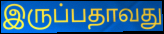
இருப்பதாவது